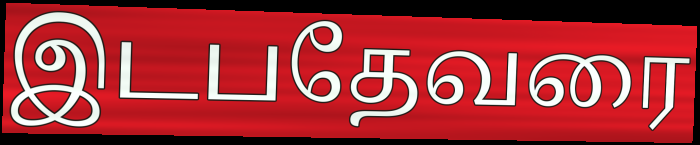
இடபதேவரை